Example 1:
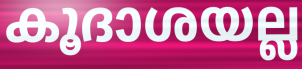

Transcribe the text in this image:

കൂദാശയല്ല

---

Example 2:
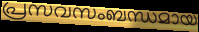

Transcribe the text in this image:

പ്രസവസംബന്ധമായ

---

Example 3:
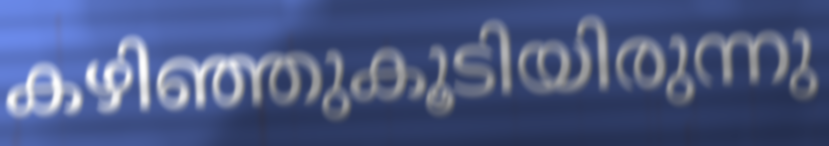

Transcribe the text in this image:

കഴിഞ്ഞുകൂടിയിരുന്നു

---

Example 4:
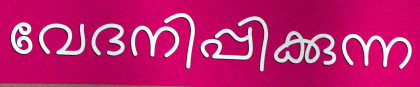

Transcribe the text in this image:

വേദനിപ്പിക്കുന്ന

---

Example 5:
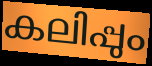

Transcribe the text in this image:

കലിപ്പും